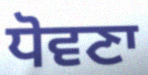
ਧੋਵਣਾ